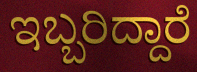
ಇಬ್ಬರಿದ್ದಾರೆ